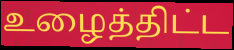
உழைத்திட்ட